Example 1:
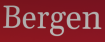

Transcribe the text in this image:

Bergen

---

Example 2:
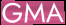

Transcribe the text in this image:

GMA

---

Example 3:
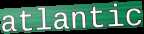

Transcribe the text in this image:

atlantic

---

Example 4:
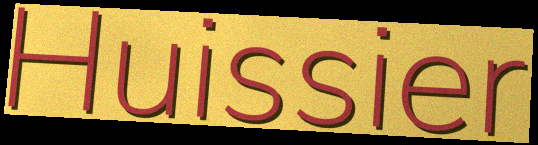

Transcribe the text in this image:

Huissier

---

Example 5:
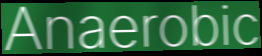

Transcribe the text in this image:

Anaerobic